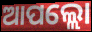
ଆପଲ୍ଲୋ